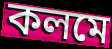
কলমে